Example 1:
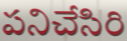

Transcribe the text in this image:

పనిచేసిరి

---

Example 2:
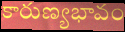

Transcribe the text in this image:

కారుణ్యభావం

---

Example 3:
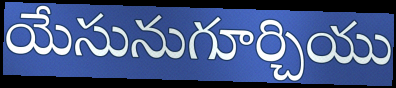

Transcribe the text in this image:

యేసునుగూర్చియు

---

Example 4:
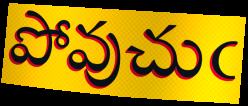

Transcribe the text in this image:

పోవుచుఁ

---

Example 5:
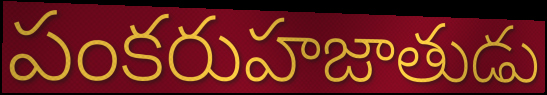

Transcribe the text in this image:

పంకరుహజాతుడు